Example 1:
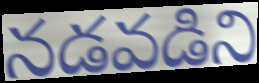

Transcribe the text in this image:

నడవడిని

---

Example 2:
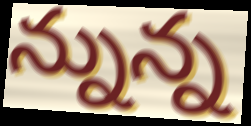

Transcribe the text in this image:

న్నున్న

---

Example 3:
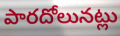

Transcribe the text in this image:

పారదోలునట్లు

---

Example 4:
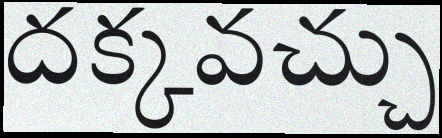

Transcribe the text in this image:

దక్కవచ్చు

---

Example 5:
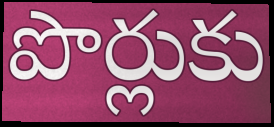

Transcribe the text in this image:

పొర్లుకు